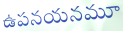
ఉపనయనమూ